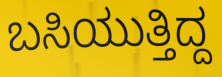
ಬಸಿಯುತ್ತಿದ್ದ